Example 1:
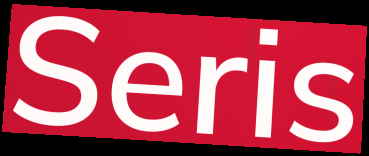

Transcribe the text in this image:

Seris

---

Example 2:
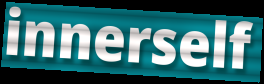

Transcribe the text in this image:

innerself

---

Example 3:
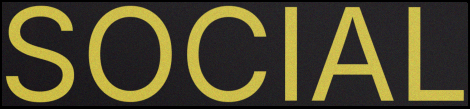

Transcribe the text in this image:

SOCIAL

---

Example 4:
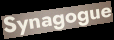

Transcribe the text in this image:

Synagogue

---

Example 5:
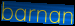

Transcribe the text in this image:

barnan